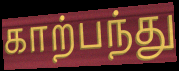
காற்பந்து